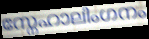
സ്നേഹാലിംഗനം